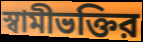
স্বামীভক্তির